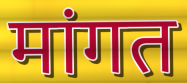
मांगत